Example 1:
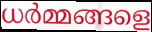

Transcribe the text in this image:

ധർമ്മങ്ങളെ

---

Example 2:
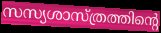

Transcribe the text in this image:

സസ്യശാസ്ത്രത്തിന്റെ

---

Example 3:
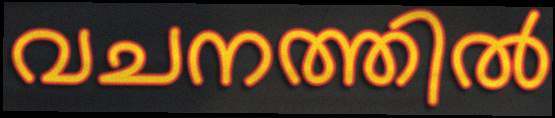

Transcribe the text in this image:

വചനത്തിൽ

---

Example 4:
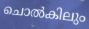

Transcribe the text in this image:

ചൊൽകിലും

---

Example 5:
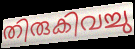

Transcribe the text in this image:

തിരുകിവച്ചു